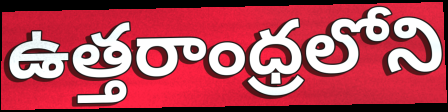
ఉత్తరాంధ్రలోని